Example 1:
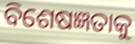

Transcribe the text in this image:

ବିଶେଷଜ୍ଞତାକୁ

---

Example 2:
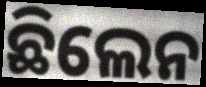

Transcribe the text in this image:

ଛିଲେନ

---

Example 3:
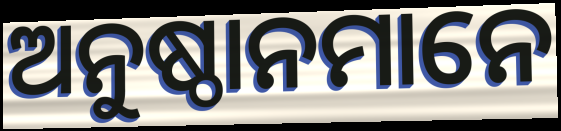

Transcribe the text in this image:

ଅନୁଷ୍ଠାନମାନେ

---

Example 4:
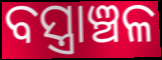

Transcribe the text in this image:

ବସ୍ତ୍ରାଞ୍ଚଳ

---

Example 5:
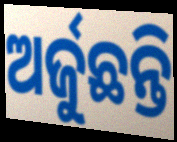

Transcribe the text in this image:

ଅର୍ଜୁଛନ୍ତି